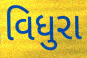
વિધુરા